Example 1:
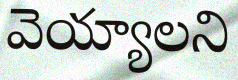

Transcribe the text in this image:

వెయ్యాలని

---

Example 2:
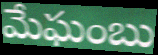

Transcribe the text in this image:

మేఘంబు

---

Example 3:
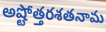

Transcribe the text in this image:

అష్టోత్తరశతనామ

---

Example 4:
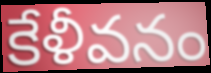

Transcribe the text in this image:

కేళీవనం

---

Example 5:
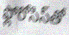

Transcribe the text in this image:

ఫ్లోరోసిస్‌తో